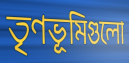
তৃণভূমিগুলো